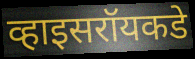
व्हाइसरॉयकडे